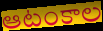
ఆటంకాల